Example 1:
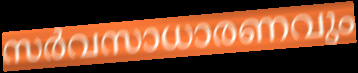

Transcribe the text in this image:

സർവസാധാരണവും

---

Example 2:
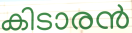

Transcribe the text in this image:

കിടാരൻ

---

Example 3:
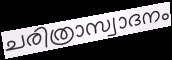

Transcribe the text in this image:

ചരിത്രാസ്വാദനം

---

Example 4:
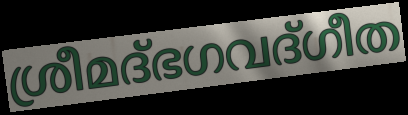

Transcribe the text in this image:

ശ്രീമദ്ഭഗവദ്ഗീത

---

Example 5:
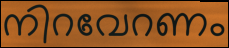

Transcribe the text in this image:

നിറവേറണം